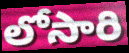
లోసారి